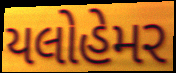
યલોહેમર